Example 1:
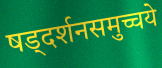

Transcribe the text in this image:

षड्दर्शनसमुच्चये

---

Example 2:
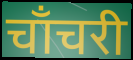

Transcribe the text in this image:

चाँचरी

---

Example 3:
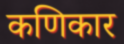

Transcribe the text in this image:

कणिकार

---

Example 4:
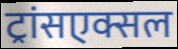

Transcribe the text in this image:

ट्रांसएक्सल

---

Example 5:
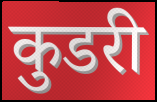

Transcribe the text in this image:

कुडरी